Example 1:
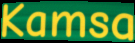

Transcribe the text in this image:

Kamsa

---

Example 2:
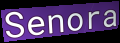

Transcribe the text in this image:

Senora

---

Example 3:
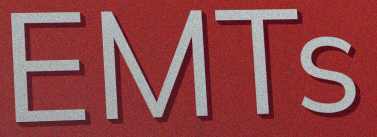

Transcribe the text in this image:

EMTs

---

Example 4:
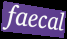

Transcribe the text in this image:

faecal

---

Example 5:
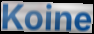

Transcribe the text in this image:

Koine